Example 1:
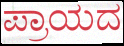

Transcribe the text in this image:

ಪ್ರಾಯದ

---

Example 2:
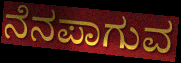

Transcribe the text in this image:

ನೆನಪಾಗುವ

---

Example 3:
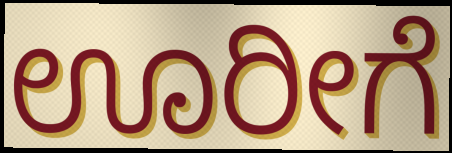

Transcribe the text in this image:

ಊರೀಗೆ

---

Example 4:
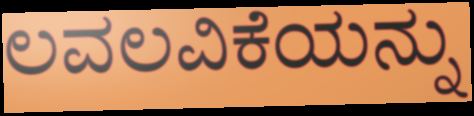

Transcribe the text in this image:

ಲವಲವಿಕೆಯನ್ನು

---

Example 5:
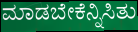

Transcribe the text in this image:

ಮಾಡಬೇಕೆನ್ನಿಸಿತು